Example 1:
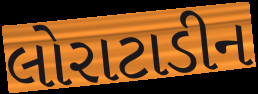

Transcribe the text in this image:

લોરાટાડીન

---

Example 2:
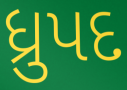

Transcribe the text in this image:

ધ્રુપદ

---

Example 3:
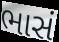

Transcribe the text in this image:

ભાસં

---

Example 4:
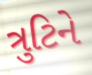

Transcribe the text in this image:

ત્રુટિને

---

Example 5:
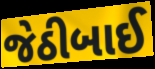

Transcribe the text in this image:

જેઠીબાઈ